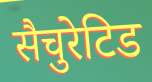
सैचुरेटिड